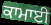
ਕਾਮਾਈ